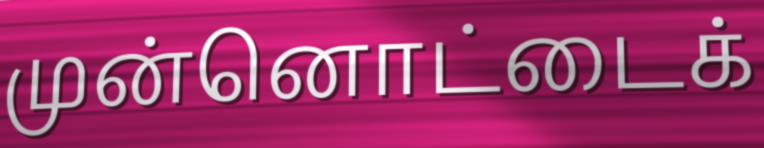
முன்னொட்டைக்